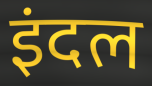
इंदल